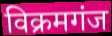
विक्रमगंज